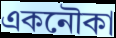
একনৌকা